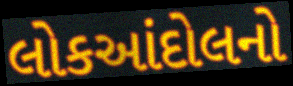
લોકઆંદોલનો